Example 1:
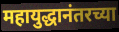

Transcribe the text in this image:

महायुद्धानंतरच्या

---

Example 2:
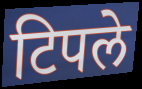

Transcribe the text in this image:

टिपले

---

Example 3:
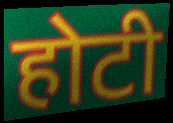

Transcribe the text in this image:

होटी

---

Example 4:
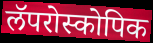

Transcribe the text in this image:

लॅपरोस्कोपिक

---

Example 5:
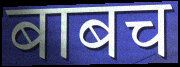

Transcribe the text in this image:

बाबच